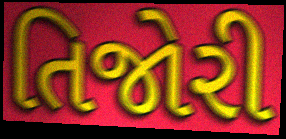
તિજોરી